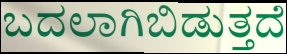
ಬದಲಾಗಿಬಿಡುತ್ತದೆ